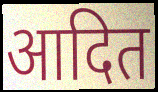
आदित